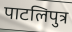
पाटलिपुत्र